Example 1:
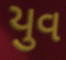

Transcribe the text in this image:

યુવ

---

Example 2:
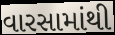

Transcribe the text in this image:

વારસામાંથી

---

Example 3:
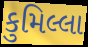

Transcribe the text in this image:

કુમિલ્લા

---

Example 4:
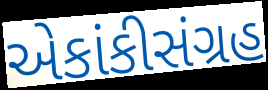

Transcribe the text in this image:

એકાંકીસંગ્રહ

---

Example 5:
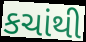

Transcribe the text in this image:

કચાંથી